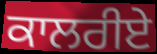
ਕਾਲਰੀਏ